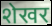
शेखर